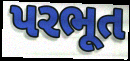
પરભૂત